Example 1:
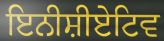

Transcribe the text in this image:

ਇਨੀਸ਼ੀਏਟਿਵ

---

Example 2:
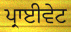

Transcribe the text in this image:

ਪ੍ਰਾਈਵੇਟ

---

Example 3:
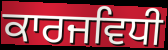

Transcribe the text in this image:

ਕਾਰਜਵਿਧੀ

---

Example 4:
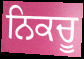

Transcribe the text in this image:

ਨਿਕਚੂ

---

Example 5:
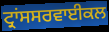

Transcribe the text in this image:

ਟ੍ਰਾਂਸਸਰਵਾਈਕਲ